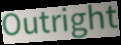
Outright